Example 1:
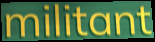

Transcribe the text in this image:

militant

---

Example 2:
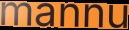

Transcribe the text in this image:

mannu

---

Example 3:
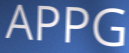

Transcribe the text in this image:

APPG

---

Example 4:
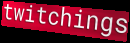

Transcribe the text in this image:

twitchings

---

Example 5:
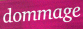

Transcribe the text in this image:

dommage